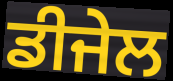
ਡੀਜੇਲ